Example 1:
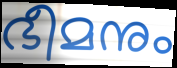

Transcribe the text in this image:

ഭീമനും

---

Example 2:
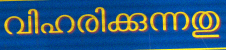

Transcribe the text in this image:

വിഹരിക്കുന്നതു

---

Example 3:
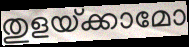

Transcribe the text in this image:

തുളയ്‌ക്കാമോ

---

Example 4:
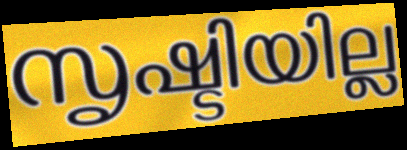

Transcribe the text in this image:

സൃഷ്ടിയില്ല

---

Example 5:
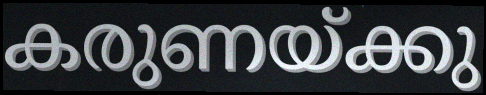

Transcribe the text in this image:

കരുണയ്ക്കു